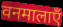
वनमालाएँ